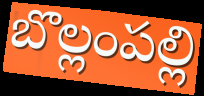
బొల్లంపల్లి